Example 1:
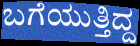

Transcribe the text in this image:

ಬಗೆಯುತ್ತಿದ್ದ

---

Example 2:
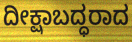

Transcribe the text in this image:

ದೀಕ್ಷಾಬದ್ಧರಾದ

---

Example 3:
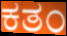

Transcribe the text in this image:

ಕತಂ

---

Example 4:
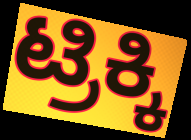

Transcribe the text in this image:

ಟ್ರಿಕ್ಕಿ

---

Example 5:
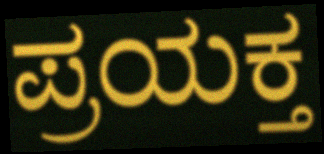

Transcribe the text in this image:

ಪ್ರಯಕ್ತ